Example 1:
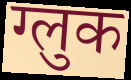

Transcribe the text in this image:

ग्लुक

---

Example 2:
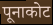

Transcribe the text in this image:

पूनाकोट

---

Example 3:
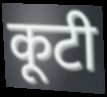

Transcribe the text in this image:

कूटी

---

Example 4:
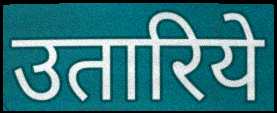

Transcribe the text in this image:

उतारिये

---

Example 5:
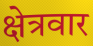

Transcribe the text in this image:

क्षेत्रवार